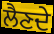
ਲੈਣਦੇ